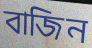
বাজিন